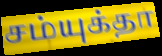
சம்யுக்தா